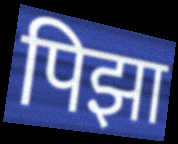
पिझा